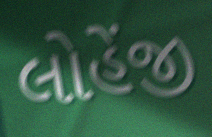
લોહેંજી